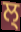
ਲ੍